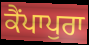
ਕੈਂਪਾਪੁਰਾ